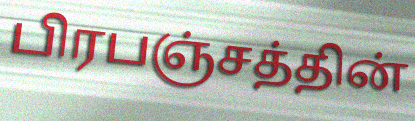
பிரபஞ்சத்தின்